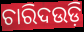
ଚାରିଦଉଡ଼ି